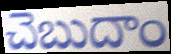
చెబుదాం